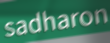
sadharon